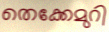
തെക്കേമുറി